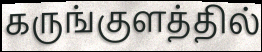
கருங்குளத்தில்